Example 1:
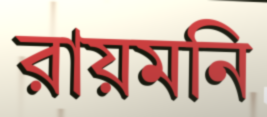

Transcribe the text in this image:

রায়মনি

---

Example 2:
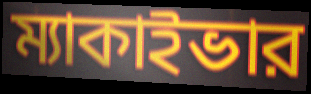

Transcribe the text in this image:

ম্যাকাইভার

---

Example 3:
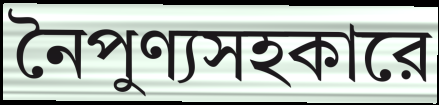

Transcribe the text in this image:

নৈপুণ্যসহকারে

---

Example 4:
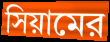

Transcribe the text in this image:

সিয়ামের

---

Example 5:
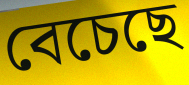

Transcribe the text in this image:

বেচেছে